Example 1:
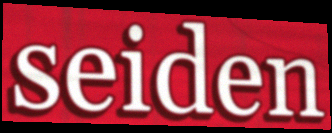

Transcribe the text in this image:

seiden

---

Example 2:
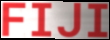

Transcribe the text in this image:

FIJI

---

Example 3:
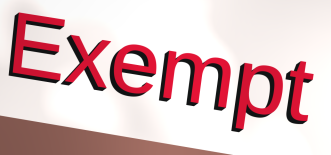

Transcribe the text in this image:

Exempt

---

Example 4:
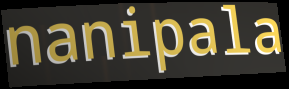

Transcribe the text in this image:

nanipala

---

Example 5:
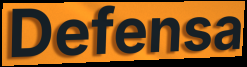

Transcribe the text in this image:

Defensa